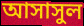
আসাসুল